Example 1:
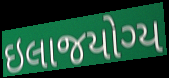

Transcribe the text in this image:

ઇલાજયોગ્ય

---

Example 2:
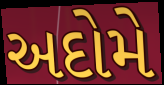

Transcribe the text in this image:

અદોમે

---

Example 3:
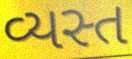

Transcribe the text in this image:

વ્યસ્ત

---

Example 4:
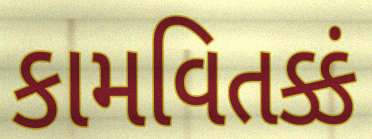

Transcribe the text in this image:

કામવિતક્કં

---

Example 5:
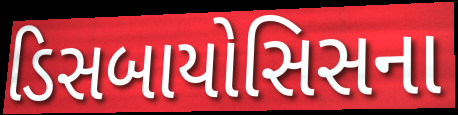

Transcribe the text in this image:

ડિસબાયોસિસના